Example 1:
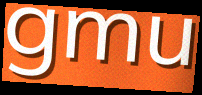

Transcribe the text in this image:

gmu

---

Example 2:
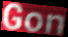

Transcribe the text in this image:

Gon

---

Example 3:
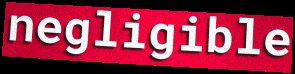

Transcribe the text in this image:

negligible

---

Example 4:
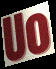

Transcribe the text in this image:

Uo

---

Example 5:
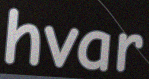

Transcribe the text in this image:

hvar